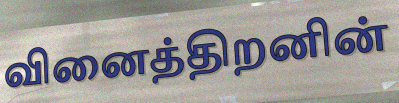
வினைத்திறனின்